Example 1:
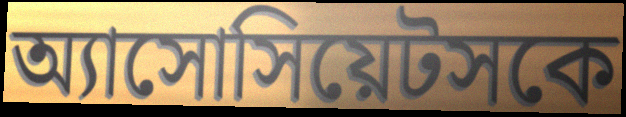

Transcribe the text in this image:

অ্যাসোসিয়েটসকে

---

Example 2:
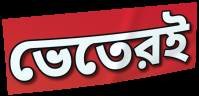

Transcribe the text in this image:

ভেতেরই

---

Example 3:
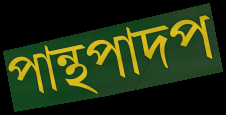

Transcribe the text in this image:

পান্থপাদপ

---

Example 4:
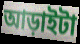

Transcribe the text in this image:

আড়াইটা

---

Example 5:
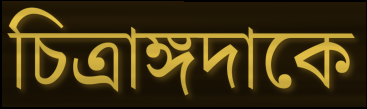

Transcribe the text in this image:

চিত্রাঙ্গদাকে